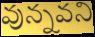
వున్నవని